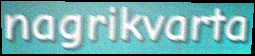
nagrikvarta